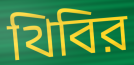
থিবির